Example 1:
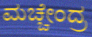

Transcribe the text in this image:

ಮಚ್ಚೇಂದ್ರ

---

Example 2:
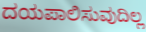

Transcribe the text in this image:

ದಯಪಾಲಿಸುವುದಿಲ್ಲ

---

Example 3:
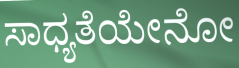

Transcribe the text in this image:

ಸಾಧ್ಯತೆಯೇನೋ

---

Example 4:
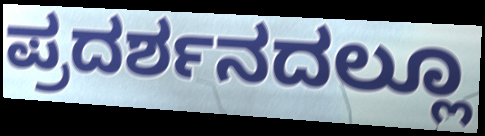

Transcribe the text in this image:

ಪ್ರದರ್ಶನದಲ್ಲೂ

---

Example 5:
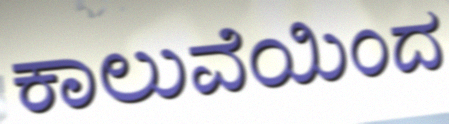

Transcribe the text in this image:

ಕಾಲುವೆಯಿಂದ